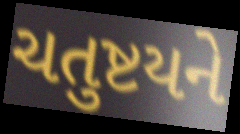
ચતુષ્ટયને